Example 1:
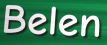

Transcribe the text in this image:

Belen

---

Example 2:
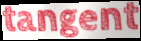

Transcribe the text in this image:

tangent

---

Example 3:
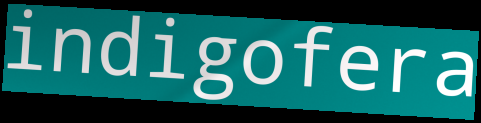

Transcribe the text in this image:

indigofera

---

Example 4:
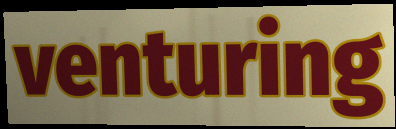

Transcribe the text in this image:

venturing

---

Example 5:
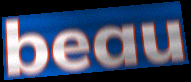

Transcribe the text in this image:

beau